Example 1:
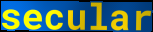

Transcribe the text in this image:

secular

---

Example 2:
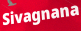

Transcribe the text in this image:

Sivagnana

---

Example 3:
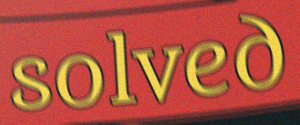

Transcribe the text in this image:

solved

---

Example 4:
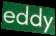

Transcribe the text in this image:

eddy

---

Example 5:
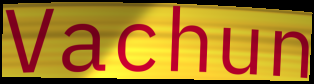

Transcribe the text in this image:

Vachun